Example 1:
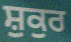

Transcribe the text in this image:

ਸ਼ੁਕੁਰ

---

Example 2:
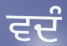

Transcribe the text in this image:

ਵਦੰ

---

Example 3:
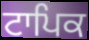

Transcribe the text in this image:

ਟਾਪਿਕ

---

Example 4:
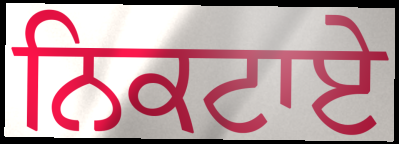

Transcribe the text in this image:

ਨਿਕਟਾਏ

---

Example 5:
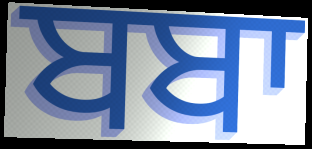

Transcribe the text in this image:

ਬਬਾ